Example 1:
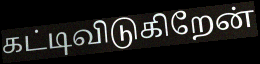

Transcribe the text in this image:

கட்டிவிடுகிறேன்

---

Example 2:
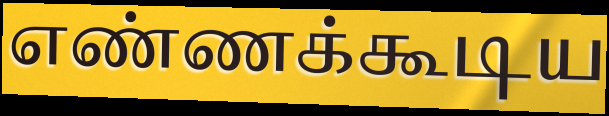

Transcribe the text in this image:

எண்ணக்கூடிய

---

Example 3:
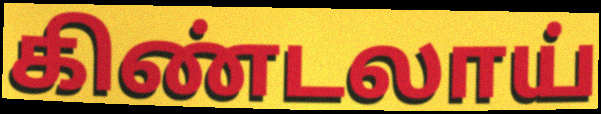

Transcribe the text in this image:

கிண்டலாய்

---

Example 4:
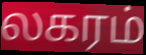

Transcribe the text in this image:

லகரம்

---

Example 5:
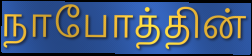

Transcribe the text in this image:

நாபோத்தின்